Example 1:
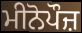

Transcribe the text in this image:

ਮੀਨੋਪੌਜ਼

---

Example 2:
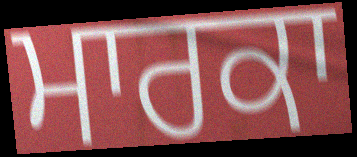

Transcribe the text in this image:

ਮਾਰਕਾ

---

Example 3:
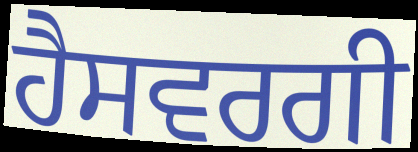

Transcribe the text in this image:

ਹੈਸਵਰਗੀ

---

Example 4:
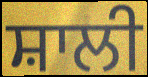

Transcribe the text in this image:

ਸ਼ਾਲੀ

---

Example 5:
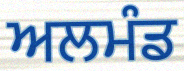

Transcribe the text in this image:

ਅਲਮੰਡ